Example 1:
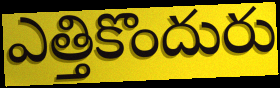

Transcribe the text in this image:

ఎత్తికొందురు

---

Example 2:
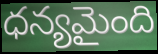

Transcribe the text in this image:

ధన్యమైంది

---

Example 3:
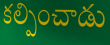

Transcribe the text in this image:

కల్పించాడు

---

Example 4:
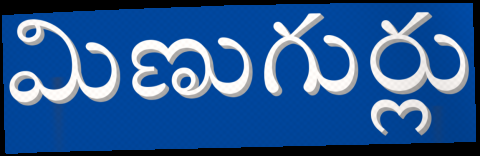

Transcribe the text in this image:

మిణుగుర్లు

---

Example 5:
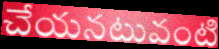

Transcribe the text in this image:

చేయనటువంటి